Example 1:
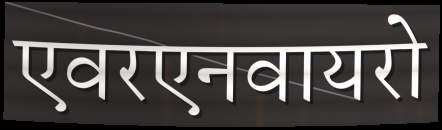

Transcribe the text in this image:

एवरएनवायरो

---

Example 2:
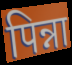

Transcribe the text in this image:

पिन्ना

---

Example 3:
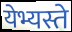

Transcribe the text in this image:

येभ्यस्ते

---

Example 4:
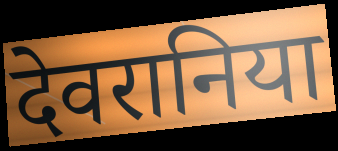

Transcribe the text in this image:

देवरानिया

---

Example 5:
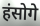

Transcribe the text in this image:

हंसोगे